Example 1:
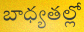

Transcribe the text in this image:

బాధ్యతల్లో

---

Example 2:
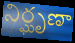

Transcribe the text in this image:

నిర్ఘృణా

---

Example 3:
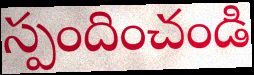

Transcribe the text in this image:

స్పందించండి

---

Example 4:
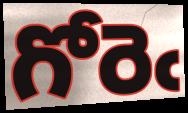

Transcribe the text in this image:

గోరెఁ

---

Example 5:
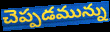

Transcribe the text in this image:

చెప్పడమున్ను